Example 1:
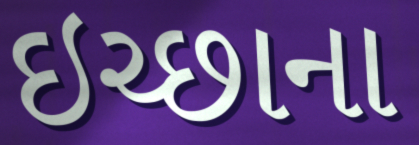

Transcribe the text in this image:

ઇચ્છાના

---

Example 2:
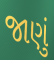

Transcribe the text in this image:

જાણું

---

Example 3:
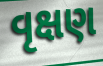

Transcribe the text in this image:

વૃક્ષણ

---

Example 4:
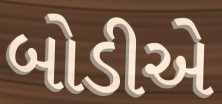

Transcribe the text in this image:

બોડીએ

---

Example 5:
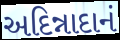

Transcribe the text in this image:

અદિન્નાદાનં